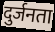
दुर्जनता